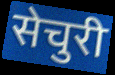
सेचुरी